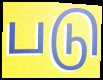
படு